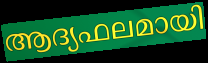
ആദ്യഫലമായി